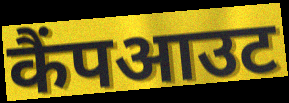
कैंपआउट